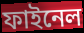
ফাইনেল